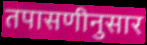
तपासणीनुसार